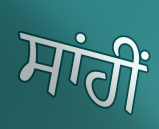
ਸਾਂਹੀਂ